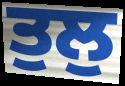
ਤੁਲੁ